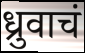
ध्रुवाचं